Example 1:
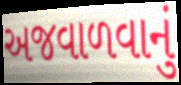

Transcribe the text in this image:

અજવાળવાનું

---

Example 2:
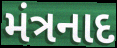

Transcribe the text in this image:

મંત્રનાદ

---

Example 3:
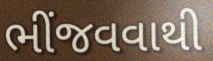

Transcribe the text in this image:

ભીંજવવાથી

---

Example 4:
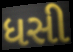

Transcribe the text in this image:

ધસી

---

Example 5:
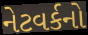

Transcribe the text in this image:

નેટવર્કનો